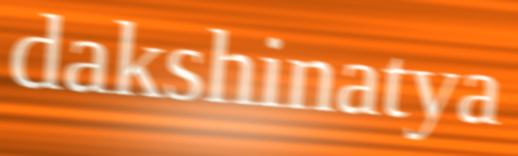
dakshinatya